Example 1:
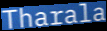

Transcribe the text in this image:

Tharala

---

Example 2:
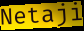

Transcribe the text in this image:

Netaji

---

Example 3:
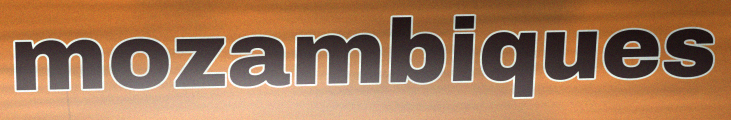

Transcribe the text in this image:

mozambiques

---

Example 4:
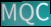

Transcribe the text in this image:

MQC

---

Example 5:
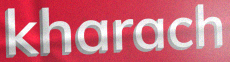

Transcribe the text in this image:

kharach